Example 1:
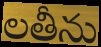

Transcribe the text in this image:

లతీను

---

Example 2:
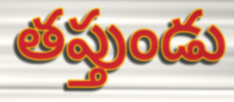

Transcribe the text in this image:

తప్తుండు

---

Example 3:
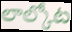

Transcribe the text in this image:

లాల్కోట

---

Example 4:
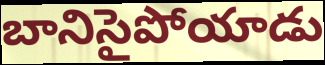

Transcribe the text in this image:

బానిసైపోయాడు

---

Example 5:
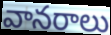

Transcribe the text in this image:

వానరాలు